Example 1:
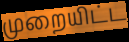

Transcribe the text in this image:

முறையிட்ட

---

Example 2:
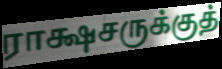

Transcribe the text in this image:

ராக்ஷசருக்குத்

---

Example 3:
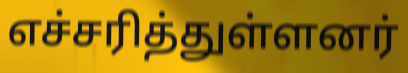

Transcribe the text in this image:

எச்சரித்துள்ளனர்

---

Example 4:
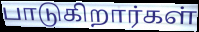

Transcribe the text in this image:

பாடுகிறார்கள்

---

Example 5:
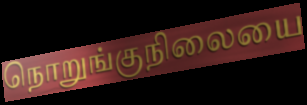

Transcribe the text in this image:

நொறுங்குநிலையை